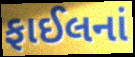
ફાઈલનાં